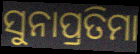
ସୁନାପ୍ରତିମା